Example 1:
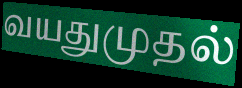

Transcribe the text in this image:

வயதுமுதல்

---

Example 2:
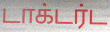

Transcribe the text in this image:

டாக்டர்ட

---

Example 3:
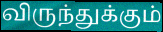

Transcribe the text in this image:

விருந்துக்கும்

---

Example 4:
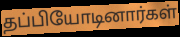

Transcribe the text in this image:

தப்பியோடினார்கள்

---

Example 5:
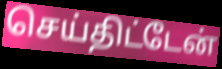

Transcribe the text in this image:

செய்திட்டேன்